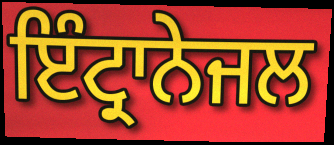
ਇੰਟ੍ਰਾਨੇਜਲ